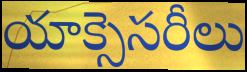
యాక్సెసరీలు